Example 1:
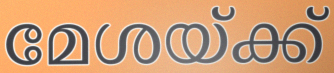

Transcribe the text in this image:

മേശയ്ക്ക്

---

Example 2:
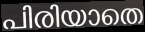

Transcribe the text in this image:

പിരിയാതെ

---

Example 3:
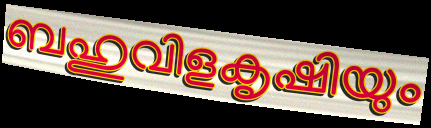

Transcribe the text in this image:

ബഹുവിളകൃഷിയും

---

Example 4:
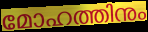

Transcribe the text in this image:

മോഹത്തിനും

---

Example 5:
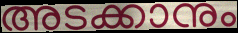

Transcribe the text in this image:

അടക്കാനും